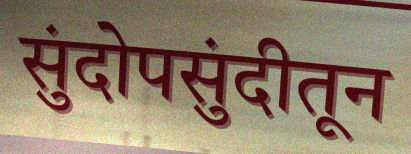
सुंदोपसुंदीतून